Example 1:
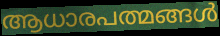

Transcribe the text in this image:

ആധാരപത്മങ്ങൾ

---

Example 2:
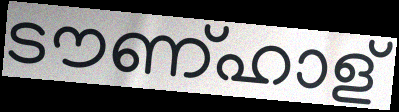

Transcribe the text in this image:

ടൗണ്ഹാള്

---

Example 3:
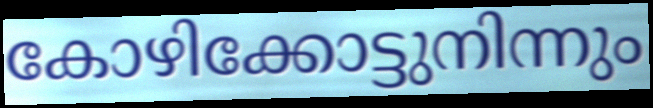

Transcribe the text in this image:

കോഴിക്കോട്ടുനിന്നും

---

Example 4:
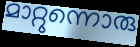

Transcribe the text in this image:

മാറ്റുന്നൊരു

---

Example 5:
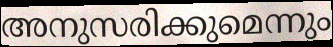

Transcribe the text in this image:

അനുസരിക്കുമെന്നും